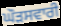
ਘੌੜਸਵਾਰੀ